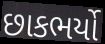
છાકભર્યો